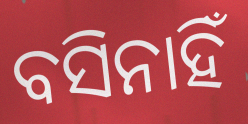
ବସିନାହିଁ